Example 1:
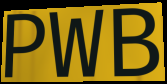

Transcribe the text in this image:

PWB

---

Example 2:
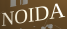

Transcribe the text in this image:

NOIDA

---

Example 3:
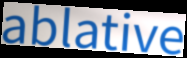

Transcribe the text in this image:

ablative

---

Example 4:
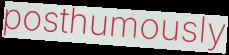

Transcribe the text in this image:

posthumously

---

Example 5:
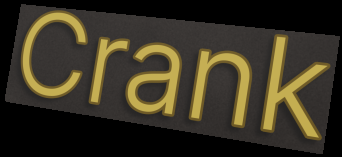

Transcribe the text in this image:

Crank